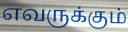
எவருக்கும்